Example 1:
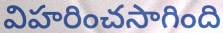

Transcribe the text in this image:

విహరించసాగింది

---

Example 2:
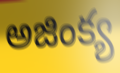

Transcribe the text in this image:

అజింక్య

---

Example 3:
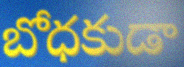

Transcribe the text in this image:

బోధకుడా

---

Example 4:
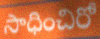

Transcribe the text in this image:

సాధించిరో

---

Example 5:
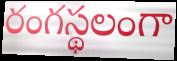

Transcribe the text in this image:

రంగస్థలంగా